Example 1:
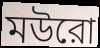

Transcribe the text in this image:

মউরো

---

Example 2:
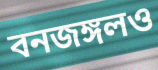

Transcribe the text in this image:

বনজঙ্গলও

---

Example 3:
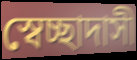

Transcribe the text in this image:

স্বেচ্ছাদাসী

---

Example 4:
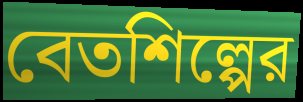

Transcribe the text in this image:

বেতশিল্পের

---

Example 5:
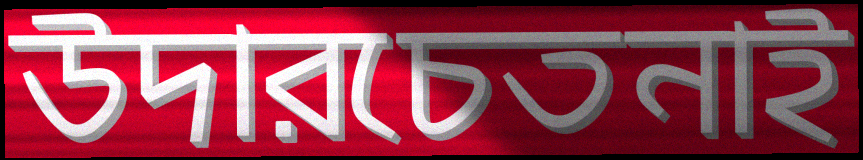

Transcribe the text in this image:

উদারচেতনাই